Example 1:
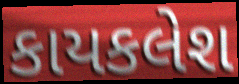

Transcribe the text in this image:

કાયકલેશ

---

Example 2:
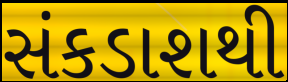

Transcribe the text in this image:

સંકડાશથી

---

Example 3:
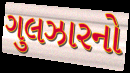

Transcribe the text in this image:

ગુલઝારનો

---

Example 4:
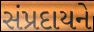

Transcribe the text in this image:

સંપ્રદાયને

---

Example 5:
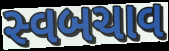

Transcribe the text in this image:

સ્વબચાવ